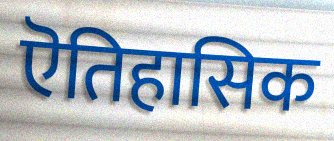
ऎतिहासिक